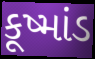
કૂષ્માંડ